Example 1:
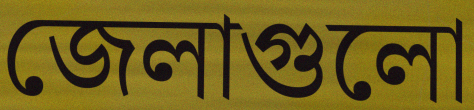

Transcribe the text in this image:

জেলাগুলো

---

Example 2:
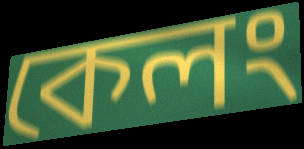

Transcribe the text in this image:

কেলং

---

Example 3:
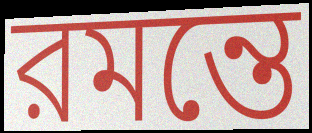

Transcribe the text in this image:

রমন্তে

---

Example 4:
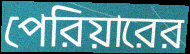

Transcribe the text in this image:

পেরিয়ারের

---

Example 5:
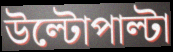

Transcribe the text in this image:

উল্টোপাল্টা